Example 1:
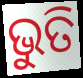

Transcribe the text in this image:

ଭୁତି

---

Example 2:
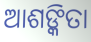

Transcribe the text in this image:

ଆଶଙ୍କିତା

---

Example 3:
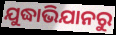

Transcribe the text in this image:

ଯୁଦ୍ଧାଭିଯାନରୁ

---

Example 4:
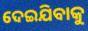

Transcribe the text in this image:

ଦେଇଯିବାକୁ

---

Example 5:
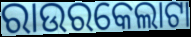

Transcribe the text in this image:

ରାଉରକେଲାଟା